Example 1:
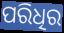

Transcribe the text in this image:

ପରିଧିର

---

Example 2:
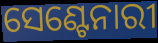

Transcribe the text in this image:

ସେଣ୍ଟେନାରୀ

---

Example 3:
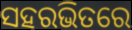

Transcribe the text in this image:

ସହରଭିତରେ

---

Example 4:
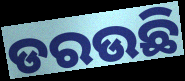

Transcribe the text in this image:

ଡରଉଛି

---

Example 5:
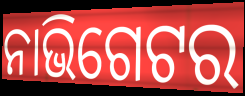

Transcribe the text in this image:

ନାଭିଗେଟର